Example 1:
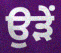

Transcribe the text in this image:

ਉੜੇਂ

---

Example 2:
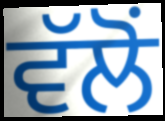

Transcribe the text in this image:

ਵੱਲੋਂ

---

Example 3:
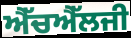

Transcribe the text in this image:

ਐੱਚਐੱਲਜੀ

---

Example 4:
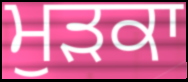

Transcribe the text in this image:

ਮੁੜਕਾ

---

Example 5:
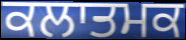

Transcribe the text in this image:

ਕਲਾਤਮਕ